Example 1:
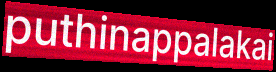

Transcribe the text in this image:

puthinappalakai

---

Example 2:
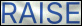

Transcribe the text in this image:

RAISE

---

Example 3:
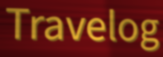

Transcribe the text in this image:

Travelog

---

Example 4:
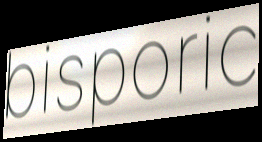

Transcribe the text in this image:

bisporic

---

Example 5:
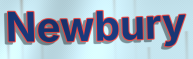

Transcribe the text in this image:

Newbury